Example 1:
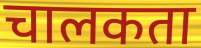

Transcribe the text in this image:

चालकता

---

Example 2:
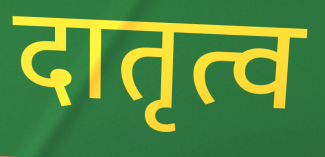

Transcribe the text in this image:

दातृत्व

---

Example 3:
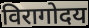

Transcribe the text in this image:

विरागोदय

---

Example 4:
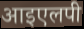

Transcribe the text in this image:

आइएलपी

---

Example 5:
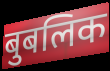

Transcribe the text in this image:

बुबलिक